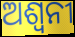
ଅଶ୍ଵନୀ